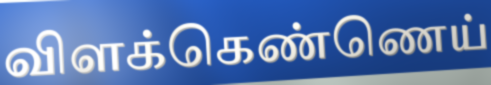
விளக்கெண்ணெய்